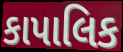
કાપાલિક